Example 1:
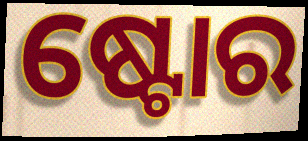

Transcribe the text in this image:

ଷ୍ଟୋର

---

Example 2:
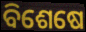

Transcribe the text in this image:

ବିଶେଷେ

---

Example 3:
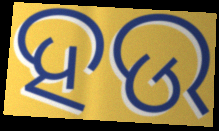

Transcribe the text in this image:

ହଉ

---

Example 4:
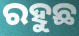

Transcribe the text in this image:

ରହୁଛ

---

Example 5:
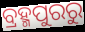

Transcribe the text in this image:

ବ୍ରହ୍ମପୁରରୁ